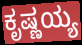
ಕೃಷ್ಣಯ್ಯ